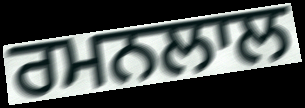
ਰਮਨਲਾਲ